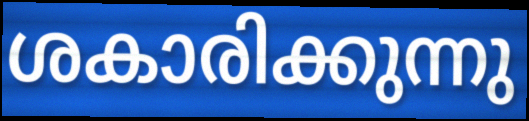
ശകാരിക്കുന്നു